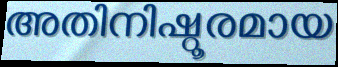
അതിനിഷ്ഠൂരമായ